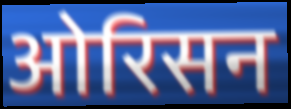
ओरिसन